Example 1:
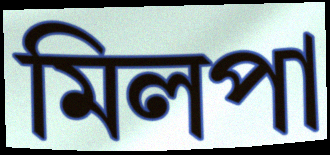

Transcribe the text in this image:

মিলপা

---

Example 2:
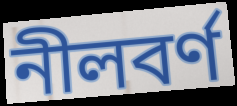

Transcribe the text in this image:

নীলবর্ণ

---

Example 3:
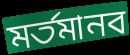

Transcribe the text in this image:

মর্তমানব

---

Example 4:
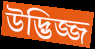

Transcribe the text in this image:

উদ্ভিজ্জ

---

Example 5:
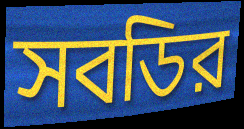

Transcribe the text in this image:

সবডির